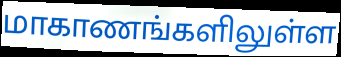
மாகாணங்களிலுள்ள